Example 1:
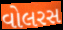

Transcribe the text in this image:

વોલરસ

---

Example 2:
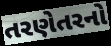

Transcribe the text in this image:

તરણેતરનો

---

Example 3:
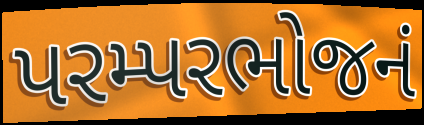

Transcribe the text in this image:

પરમ્પરભોજનં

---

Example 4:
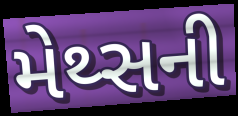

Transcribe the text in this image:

મેથ્સની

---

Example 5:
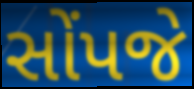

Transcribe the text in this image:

સોંપજે